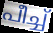
പീച്ച്